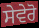
ਸੇਵੇਰੋ